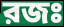
রজঃ